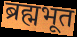
ब्रह्मभूत